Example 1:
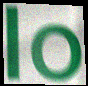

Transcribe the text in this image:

Io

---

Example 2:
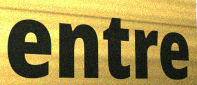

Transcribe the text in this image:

entre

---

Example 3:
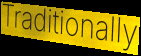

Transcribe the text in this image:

Traditionally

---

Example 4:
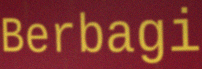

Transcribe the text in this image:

Berbagi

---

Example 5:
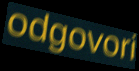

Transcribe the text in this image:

odgovori